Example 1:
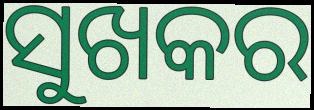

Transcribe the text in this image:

ସୁଖକର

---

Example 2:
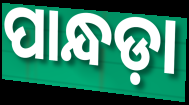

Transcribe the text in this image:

ପାନ୍ଧଡ଼ା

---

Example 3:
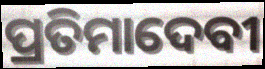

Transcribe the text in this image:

ପ୍ରତିମାଦେବୀ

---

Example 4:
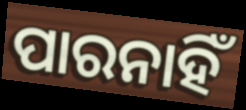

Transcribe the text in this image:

ପାରନାହିଁ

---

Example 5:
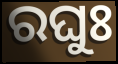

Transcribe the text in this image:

ରଘୁଃ